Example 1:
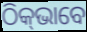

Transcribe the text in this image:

ଠିକ୍‌ଭାବେ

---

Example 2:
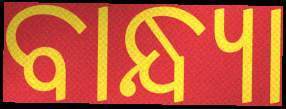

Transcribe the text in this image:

ବାନ୍ଧ୍ୟା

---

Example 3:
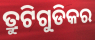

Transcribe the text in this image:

ତ୍ରୁଟିଗୁଡିକର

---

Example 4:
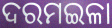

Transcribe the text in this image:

ଦରମଇଳା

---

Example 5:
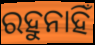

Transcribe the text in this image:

ରହୁନାହିଁ